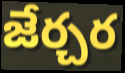
జేర్చర